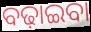
ବଢ଼ାଇବା